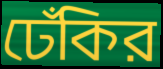
ঢেঁকির